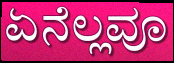
ಏನೆಲ್ಲವೂ